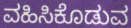
ವಹಿಸಿಕೊಡುವ